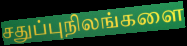
சதுப்புநிலங்களை